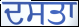
ਦਸਤਾ